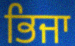
ਭਿਜਾ